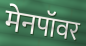
मेनपॉवर